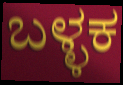
ಬಳ್ಳಕ